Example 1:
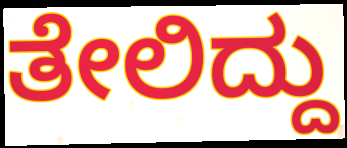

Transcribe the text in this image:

ತೇಲಿದ್ದು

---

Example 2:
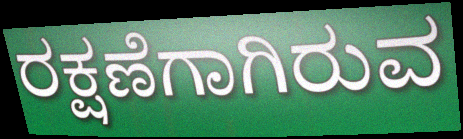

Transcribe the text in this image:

ರಕ್ಷಣೆಗಾಗಿರುವ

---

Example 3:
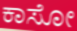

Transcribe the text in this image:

ಕಾಸೋ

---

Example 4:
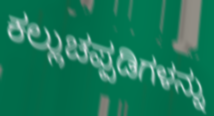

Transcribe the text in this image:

ಕಲ್ಲುಚಪ್ಪಡಿಗಳನ್ನು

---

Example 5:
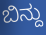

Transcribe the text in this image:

ಬಿನ್ದು